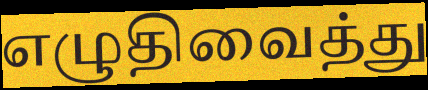
எழுதிவைத்து